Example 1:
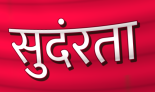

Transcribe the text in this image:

सुदंरता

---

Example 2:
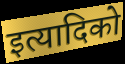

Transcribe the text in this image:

इत्यादिको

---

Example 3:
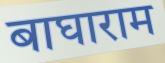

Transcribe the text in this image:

बाघाराम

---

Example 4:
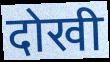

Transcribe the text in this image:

दोखी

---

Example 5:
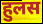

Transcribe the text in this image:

हुलस